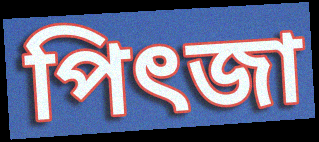
পিৎজা